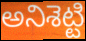
అనిశెట్టి